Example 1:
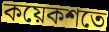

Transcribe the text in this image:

কয়েকশতে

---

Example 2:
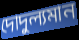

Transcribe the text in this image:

দোদুল্যমান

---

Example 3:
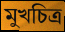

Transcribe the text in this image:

মুখচিত্র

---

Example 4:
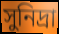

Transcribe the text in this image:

সুনিদ্রা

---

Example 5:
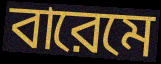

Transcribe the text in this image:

বারেমে